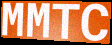
MMTC